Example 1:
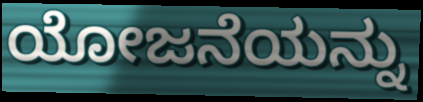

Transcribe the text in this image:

ಯೋಜನೆಯನ್ನು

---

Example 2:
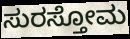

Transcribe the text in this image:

ಸುರಸ್ತೋಮ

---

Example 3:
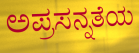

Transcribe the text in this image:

ಅಪ್ರಸನ್ನತೆಯ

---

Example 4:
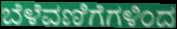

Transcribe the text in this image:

ಬೆಳೆವಣಿಗೆಗಳಿಂದ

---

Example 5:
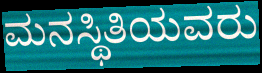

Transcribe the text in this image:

ಮನಸ್ಥಿತಿಯವರು